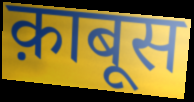
क़ाबूस